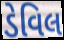
ડેવિલ